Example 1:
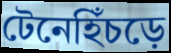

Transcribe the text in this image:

টেনেহিঁচড়ে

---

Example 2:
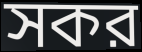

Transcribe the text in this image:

সকর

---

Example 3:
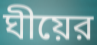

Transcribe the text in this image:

ঘীয়ের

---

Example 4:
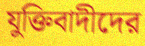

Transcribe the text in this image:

যুক্তিবাদীদের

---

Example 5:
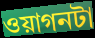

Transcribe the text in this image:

ওয়াগনটা